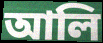
আলি